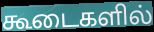
கூடைகளில்